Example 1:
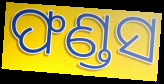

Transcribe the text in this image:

ଫଣ୍ଡସ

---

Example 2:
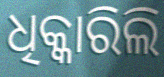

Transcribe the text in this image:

ଧିକ୍କାରିଲି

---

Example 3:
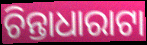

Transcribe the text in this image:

ଚିନ୍ତାଧାରାଟା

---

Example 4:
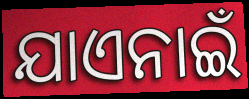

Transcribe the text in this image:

ଯାଏନାଇଁ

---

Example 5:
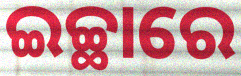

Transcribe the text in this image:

ଇଚ୍ଛାରେ